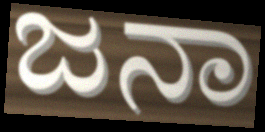
ಜನಾ